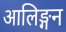
आलिङ्गन